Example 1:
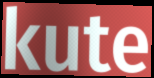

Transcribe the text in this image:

kute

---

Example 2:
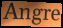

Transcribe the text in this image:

Angre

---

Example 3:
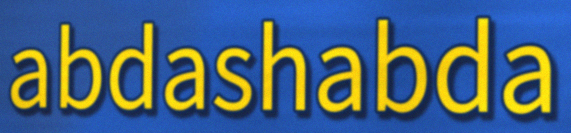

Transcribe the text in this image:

abdashabda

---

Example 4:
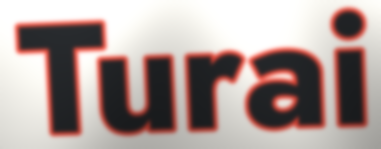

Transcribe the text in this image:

Turai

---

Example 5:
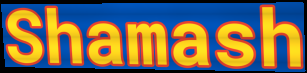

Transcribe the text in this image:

Shamash